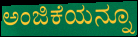
ಅಂಜಿಕೆಯನ್ನೂ